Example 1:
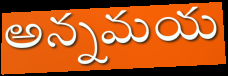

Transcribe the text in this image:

అన్నమయ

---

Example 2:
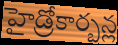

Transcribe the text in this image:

హైడ్రోకార్బన్ల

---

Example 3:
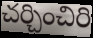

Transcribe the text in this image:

చర్చించిరి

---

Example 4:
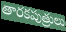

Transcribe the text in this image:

తారకపుత్రులు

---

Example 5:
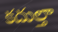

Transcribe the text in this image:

కదుల్తా